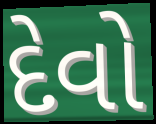
દેવો